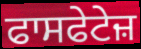
ਫਾਸਫੇਟੇਜ਼